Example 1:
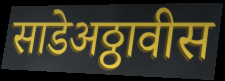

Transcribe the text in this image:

साडेअठ्ठावीस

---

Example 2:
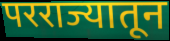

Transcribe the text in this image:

परराज्यातून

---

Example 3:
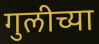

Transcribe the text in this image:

गुलीच्या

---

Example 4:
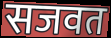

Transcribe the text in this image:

सजवत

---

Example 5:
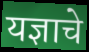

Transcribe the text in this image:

यज्ञाचे